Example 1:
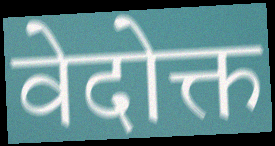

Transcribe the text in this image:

वेदोक्त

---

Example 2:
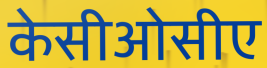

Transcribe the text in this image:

केसीओसीए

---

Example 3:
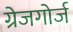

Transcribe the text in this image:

ग्रेजगोर्ज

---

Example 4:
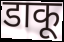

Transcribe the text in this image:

डाकू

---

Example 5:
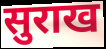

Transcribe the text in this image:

सुराख